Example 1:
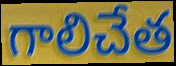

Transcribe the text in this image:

గాలిచేత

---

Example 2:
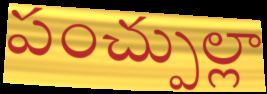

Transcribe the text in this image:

పంచ్పుల్లా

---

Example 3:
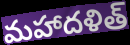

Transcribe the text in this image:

మహాదళిత్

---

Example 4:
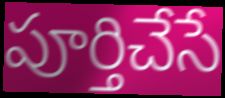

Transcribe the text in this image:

పూర్తిచేసే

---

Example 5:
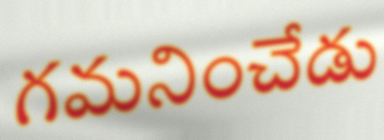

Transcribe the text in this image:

గమనించేడు